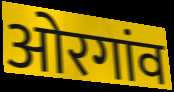
ओरगांव